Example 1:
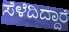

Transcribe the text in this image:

ಸೆಳೆದಿದ್ದಾರೆ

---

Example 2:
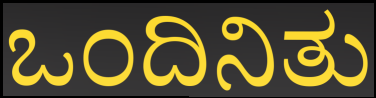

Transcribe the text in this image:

ಒಂದಿನಿತು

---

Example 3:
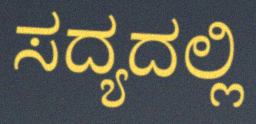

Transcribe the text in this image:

ಸದ್ಯದಲ್ಲಿ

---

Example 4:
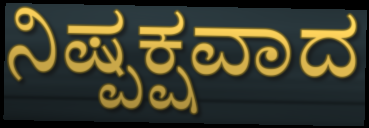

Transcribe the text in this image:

ನಿಷ್ಪಕ್ಷವಾದ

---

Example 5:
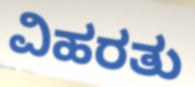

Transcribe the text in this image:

ವಿಹರತು